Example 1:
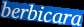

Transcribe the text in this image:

berbicara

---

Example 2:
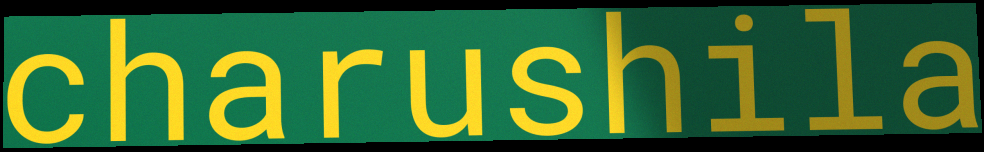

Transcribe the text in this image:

charushila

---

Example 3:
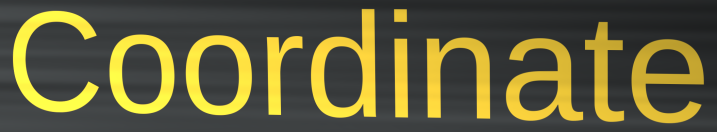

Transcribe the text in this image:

Coordinate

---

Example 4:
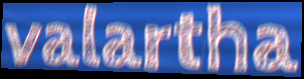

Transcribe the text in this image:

valartha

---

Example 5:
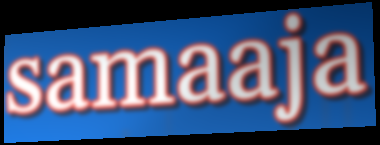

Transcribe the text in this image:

samaaja